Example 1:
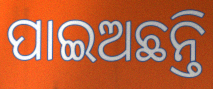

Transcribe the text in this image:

ପାଇଅଛନ୍ତି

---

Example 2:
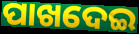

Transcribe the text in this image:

ପାଖଦେଇ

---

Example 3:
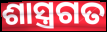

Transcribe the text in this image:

ଶାସ୍ତ୍ରଗତ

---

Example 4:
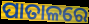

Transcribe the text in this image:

ପାତାଳରେ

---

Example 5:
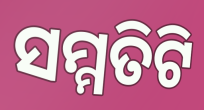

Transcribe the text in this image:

ସମ୍ମତିଟି